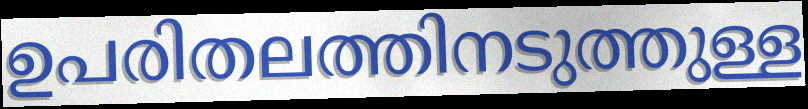
ഉപരിതലത്തിനടുത്തുള്ള